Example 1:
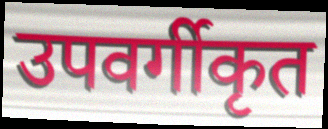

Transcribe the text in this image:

उपवर्गीकृत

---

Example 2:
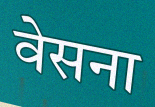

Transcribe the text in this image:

वेसना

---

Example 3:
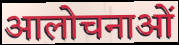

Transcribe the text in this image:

आलोचनाओं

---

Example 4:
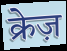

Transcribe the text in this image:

क्रेज़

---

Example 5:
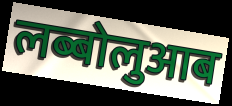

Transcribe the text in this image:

लब्बोलुआब